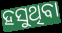
ହସୁଥିବା